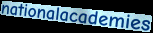
nationalacademies